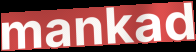
mankad